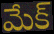
మేక్